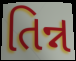
તિન્ન